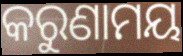
କରୁଣାମୟ